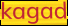
kagad